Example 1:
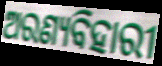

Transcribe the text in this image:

ଅରଣ୍ୟବିହାରୀ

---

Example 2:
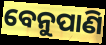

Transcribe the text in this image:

ବେନୁପାଣି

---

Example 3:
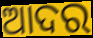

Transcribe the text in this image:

ଆଦର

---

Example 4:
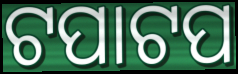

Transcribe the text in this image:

ଟପାଟପ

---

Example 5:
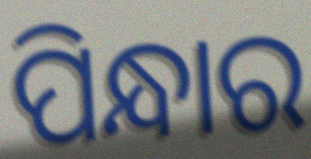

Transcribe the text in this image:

ପିନ୍ଧାର